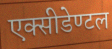
एक्सीडेण्टल